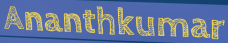
Ananthkumar